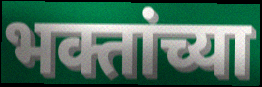
भक्तांच्या